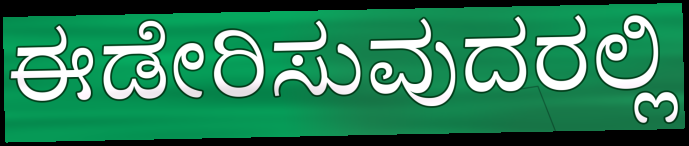
ಈಡೇರಿಸುವುದರಲ್ಲಿ